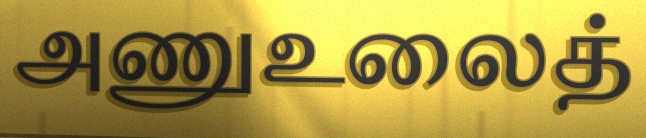
அணுஉலைத்